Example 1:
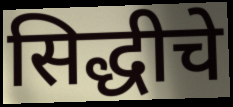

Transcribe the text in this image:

सिद्धीचे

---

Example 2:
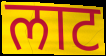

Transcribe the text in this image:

लाट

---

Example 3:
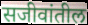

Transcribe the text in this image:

सजीवांतील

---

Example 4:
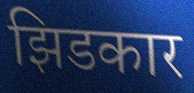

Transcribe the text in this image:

झिडकार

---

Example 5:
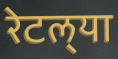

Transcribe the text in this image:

रेटल्या